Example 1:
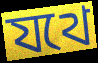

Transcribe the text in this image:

যথে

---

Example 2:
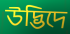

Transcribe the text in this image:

উদ্ভিদে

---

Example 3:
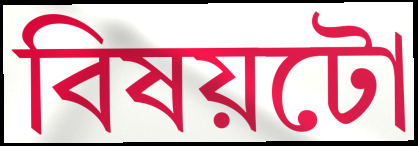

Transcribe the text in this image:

বিষয়টো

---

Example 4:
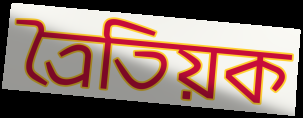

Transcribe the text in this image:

ত্ৰৈতিয়ক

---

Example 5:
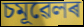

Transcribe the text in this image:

চমূৱেলৰ